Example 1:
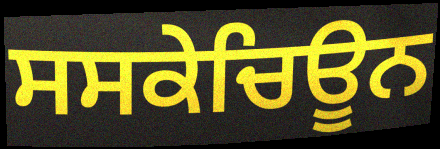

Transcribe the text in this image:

ਸਸਕੇਚਿਊਨ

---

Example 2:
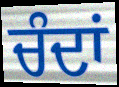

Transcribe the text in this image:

ਚੰਦਾਂ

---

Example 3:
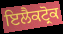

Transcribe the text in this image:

ਇਲੈਕਟ੍ਰੋਕ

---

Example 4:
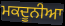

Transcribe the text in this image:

ਮਕਦੂਨੀਆ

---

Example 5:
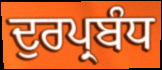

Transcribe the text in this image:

ਦੁਰਪ੍ਰਬੰਧ